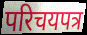
परिचयपत्र